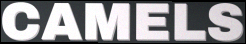
CAMELS